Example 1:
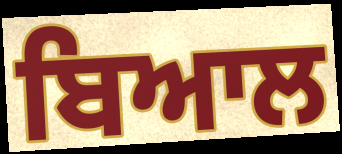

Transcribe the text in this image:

ਬਿਆਲ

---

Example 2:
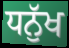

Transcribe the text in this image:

ਧਨੁੱਖ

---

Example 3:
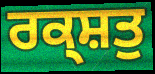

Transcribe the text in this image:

ਰਕ੍ਸ਼ਤੁ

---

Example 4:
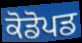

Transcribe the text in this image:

ਕੋਡੋਪਡ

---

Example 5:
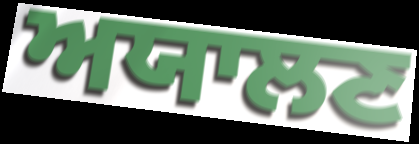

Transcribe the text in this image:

ਅਯਾਲਣ